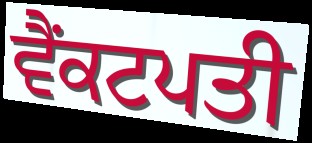
ਵੈਂਕਟਪਤੀ